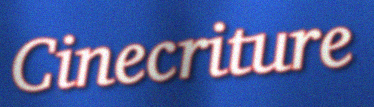
Cinecriture